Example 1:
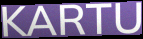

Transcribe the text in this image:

KARTU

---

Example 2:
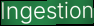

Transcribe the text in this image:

Ingestion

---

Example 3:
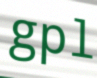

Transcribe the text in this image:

gpl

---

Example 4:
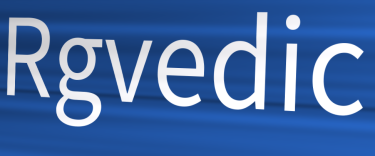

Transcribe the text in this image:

Rgvedic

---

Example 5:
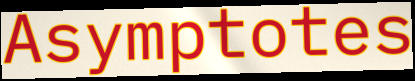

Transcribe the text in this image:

Asymptotes